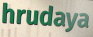
hrudaya